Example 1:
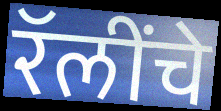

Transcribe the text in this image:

रॅलींचे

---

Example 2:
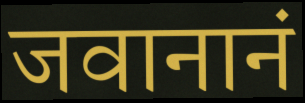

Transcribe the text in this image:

जवानानं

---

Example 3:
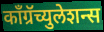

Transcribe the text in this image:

काँग्रॅच्युलेशन्स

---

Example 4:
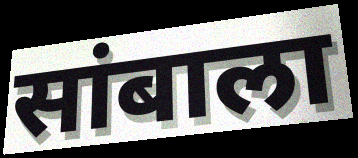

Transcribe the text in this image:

सांबाला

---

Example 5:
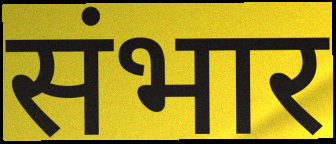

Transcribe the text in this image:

संभार